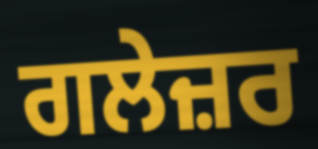
ਗਲੇਜ਼ਰ